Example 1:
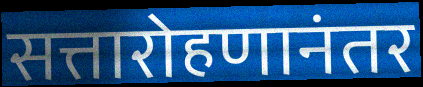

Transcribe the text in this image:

सत्तारोहणानंतर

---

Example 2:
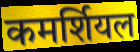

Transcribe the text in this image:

कमर्शियल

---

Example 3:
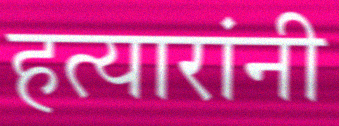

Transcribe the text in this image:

हत्यारांनी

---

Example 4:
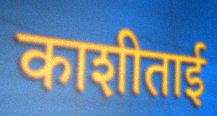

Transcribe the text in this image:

काशीताई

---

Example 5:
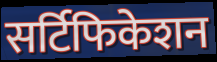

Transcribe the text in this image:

सर्टिफिकेशन